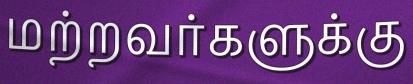
மற்றவர்களுக்கு